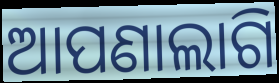
ଆପଣାଲାଗି